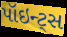
પૉઇન્ટ્સ